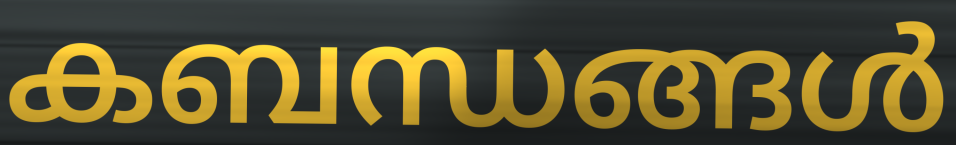
കബന്ധങ്ങൾ